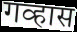
गव्हास